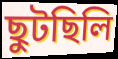
ছুটছিলি